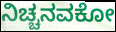
ನಿಚ್ಚನವಕೋ